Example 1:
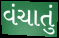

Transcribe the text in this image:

વંચાતું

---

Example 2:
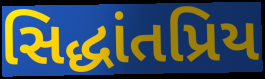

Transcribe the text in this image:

સિદ્ધાંતપ્રિય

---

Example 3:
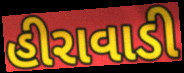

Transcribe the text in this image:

હીરાવાડી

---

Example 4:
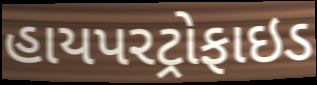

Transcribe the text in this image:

હાયપરટ્રોફાઇડ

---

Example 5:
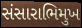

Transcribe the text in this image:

સંસારાભિમુખ